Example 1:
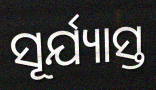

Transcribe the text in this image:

ସୂର୍ଯ୍ୟାସ୍ତ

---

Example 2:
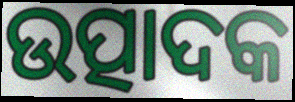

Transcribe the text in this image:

ଉତ୍ପାଦକ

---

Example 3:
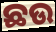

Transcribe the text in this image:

ଛଉ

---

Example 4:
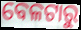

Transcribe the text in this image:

ବେଳଟାରୁ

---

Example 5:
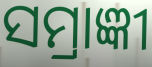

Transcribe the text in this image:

ସମ୍ରାଜ୍ଞୀ